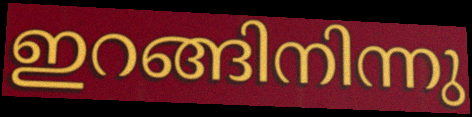
ഇറങ്ങിനിന്നു